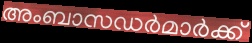
അംബാസഡർമാർക്ക്